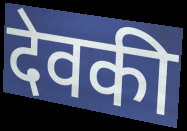
देवकी